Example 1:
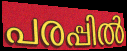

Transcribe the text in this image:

പരപ്പിൽ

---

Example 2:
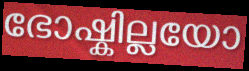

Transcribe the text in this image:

ഭോഷ്കില്ലയോ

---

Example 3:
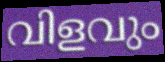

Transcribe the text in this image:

വിളവും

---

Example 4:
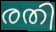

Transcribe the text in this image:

രതി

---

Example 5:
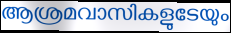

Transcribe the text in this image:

ആശ്രമവാസികളുടേയും